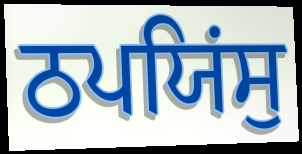
ਠਪਯਿਂਸੁ